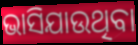
ଭାସିଯାଉଥିବା